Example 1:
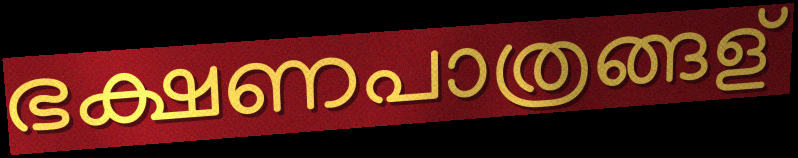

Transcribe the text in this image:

ഭക്ഷണപാത്രങ്ങള്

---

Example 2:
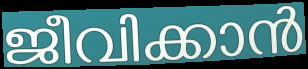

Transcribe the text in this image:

ജീവിക്കാൻ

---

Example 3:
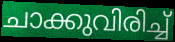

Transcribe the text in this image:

ചാക്കുവിരിച്ച്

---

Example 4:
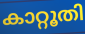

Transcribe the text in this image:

കാറ്റൂതി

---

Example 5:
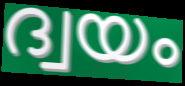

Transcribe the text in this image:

ദ്വയം